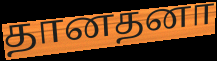
தானதனா